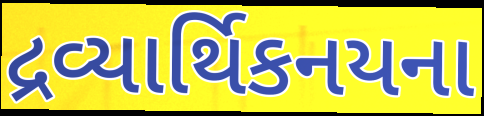
દ્રવ્યાર્થિકનયના